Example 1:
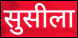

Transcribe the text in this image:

सुसीला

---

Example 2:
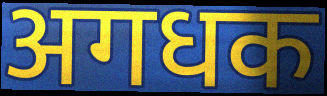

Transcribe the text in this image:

अगधक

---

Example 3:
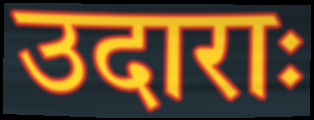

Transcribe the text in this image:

उदाराः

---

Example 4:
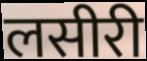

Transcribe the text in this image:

लसीरी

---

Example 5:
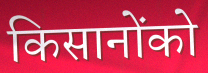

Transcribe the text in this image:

किसानोंको